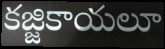
కజ్జికాయలూ